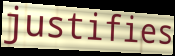
justifies